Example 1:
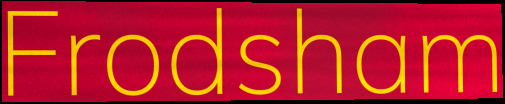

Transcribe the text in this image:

Frodsham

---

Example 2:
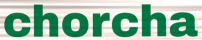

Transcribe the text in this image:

chorcha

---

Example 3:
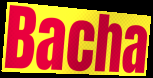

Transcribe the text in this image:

Bacha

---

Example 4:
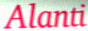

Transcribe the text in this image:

Alanti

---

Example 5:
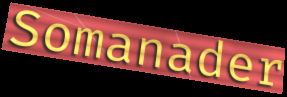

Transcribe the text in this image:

Somanader